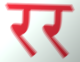
रर